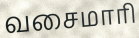
வசைமாரி